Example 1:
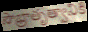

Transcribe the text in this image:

సౌభ్రాతృత్వానికి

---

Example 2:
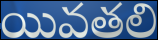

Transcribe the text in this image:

యివతలి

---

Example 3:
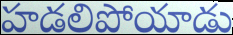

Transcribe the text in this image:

హడలిపోయాడు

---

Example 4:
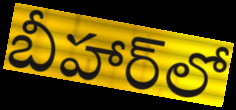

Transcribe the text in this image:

బీహార్‌లో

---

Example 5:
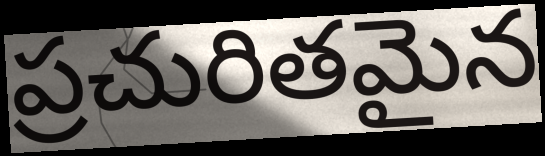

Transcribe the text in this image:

ప్రచురితమైన